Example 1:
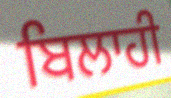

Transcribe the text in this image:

ਬਿਲਾਹੀ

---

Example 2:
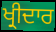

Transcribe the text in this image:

ਖ੍ਰੀਦਾਰ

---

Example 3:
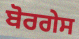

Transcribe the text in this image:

ਬੋਰਗੇਸ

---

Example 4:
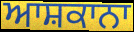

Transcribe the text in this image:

ਆਸ਼ਕਾਨਾ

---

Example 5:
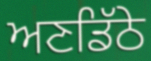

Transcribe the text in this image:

ਅਣਡਿੱਠੇ